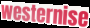
westernise